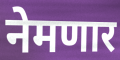
नेमणार